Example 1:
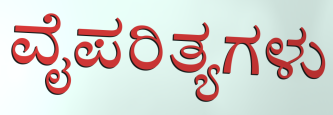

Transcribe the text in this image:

ವೈಪರಿತ್ಯಗಳು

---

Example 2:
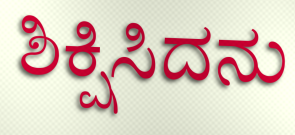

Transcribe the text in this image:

ಶಿಕ್ಷಿಸಿದನು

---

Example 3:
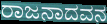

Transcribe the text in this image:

ರಾಜನಾದವನ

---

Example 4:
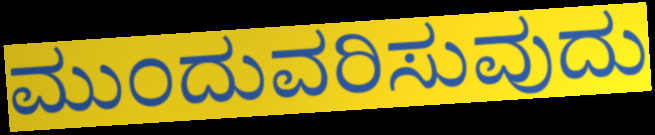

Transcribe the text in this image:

ಮುಂದುವರಿಸುವುದು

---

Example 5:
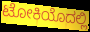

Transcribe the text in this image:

ಟೋಕಿಯೊದಲ್ಲಿ